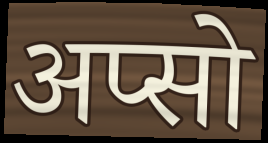
अप्सो